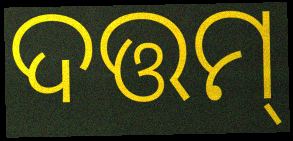
ଦତ୍ତମ୍